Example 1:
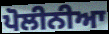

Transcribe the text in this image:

ਪੋਲੀਨੀਆ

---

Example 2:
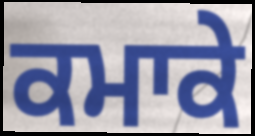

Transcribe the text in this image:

ਕਮਾਕੇ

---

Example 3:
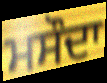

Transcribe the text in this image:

ਮਸੌਦਾ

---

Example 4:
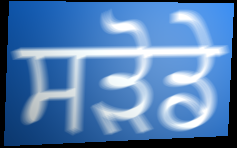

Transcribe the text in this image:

ਸੜੋਡੇ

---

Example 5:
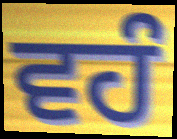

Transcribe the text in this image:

ਵਹੰ